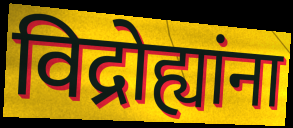
विद्रोह्यांना